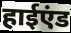
हाईएंड